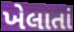
ખેલાતાં